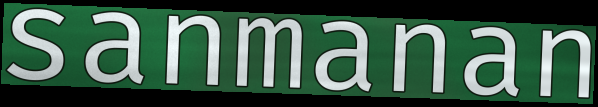
sanmanan